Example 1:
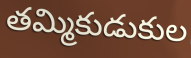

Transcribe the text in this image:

తమ్మికుడుకుల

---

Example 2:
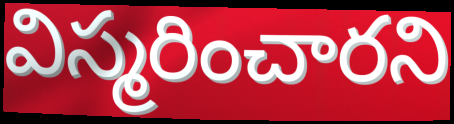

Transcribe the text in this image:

విస్మరించారని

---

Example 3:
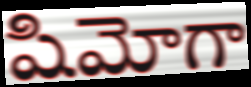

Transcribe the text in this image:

షిమోగా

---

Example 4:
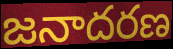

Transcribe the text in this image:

జనాదరణ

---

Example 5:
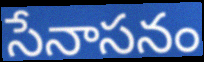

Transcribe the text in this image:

సేనాసనం